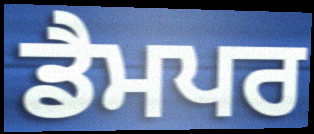
ਡੈਮਪਰ